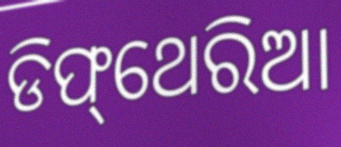
ଡିଫ୍‌ଥେରିଆ